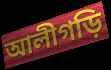
আলীগড়ি